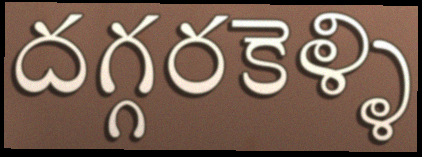
దగ్గరకెళ్ళి